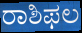
ರಾಶಿಫಲ